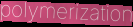
polymerization